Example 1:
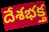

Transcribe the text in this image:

దేశభక్త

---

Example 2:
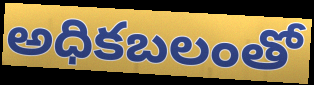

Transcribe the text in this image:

అధికబలంతో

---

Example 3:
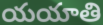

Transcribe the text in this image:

యయాతి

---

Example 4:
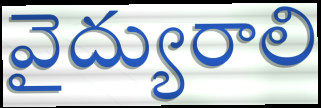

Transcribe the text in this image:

వైద్యురాలి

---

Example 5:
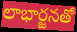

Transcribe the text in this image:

లాభార్జనతో